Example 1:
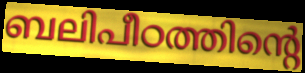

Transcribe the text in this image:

ബലിപീഠത്തിന്റെ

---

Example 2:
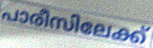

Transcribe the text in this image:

പാരീസിലേക്ക്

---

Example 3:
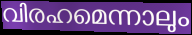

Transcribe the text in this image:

വിരഹമെന്നാലും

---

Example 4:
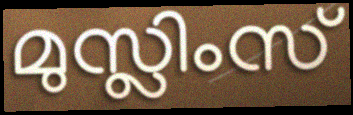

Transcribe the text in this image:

മുസ്ലിംസ്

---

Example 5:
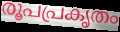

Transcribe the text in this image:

രൂപപ്രകൃതം